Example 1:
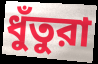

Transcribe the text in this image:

ধুঁতুরা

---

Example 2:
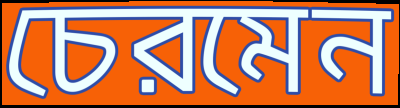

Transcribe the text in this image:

চেরমেন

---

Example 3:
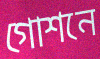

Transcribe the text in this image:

গোশনে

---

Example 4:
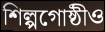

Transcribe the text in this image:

শিল্পগোষ্ঠীও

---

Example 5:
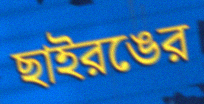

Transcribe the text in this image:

ছাইরঙের